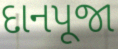
દાનપૂજા